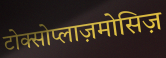
टोक्सोप्लाज़मोसिज़